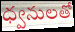
ధ్వనులతో